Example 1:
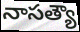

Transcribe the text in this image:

నాసత్యౌ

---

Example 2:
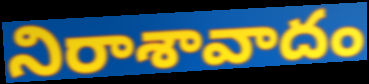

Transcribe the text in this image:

నిరాశావాదం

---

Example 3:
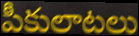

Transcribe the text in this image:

పీకులాటలు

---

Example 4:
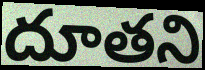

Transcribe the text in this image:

దూతని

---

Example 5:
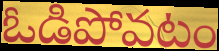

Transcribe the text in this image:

ఓడిపోవటం